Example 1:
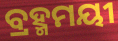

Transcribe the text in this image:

ବ୍ରହ୍ମମୟୀ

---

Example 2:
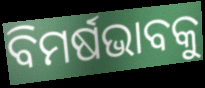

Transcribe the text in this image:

ବିମର୍ଷଭାବକୁ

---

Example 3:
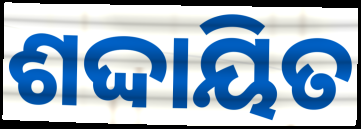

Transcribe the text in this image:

ଶଦ୍ଦାୟିତ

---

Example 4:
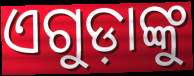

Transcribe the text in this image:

ଏଗୁଡ଼ାଙ୍କୁ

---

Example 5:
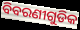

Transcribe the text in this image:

ବିବରଣୀଗୁଡିକ